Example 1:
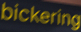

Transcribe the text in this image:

bickering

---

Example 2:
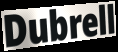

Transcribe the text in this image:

Dubrell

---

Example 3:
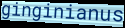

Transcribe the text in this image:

ginginianus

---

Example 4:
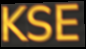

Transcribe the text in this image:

KSE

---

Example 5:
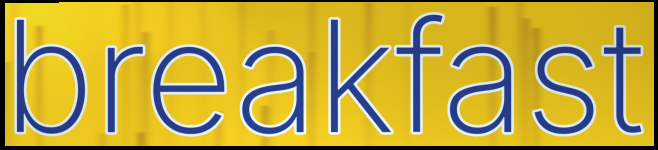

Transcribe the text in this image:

breakfast